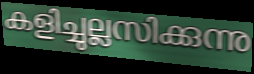
കളിച്ചുല്ലസിക്കുന്നു